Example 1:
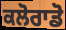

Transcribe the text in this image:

ਕਲੋਰਾਡੋ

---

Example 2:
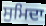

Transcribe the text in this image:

ਸੁਮਿਦਾ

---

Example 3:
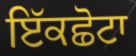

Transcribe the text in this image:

ਇੱਕਛੋਟਾ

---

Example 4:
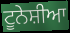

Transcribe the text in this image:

ਟੂਨੇਸ਼ੀਆ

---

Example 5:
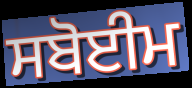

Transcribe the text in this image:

ਸਬੋਈਮ